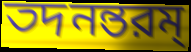
তদনন্তরম্